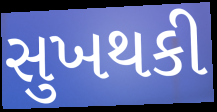
સુખથકી